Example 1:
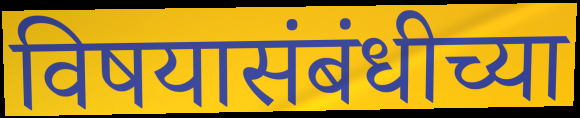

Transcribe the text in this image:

विषयासंबंधीच्या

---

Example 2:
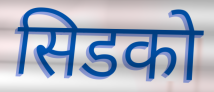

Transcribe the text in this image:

सिडको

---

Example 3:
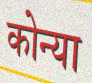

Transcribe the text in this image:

कोन्या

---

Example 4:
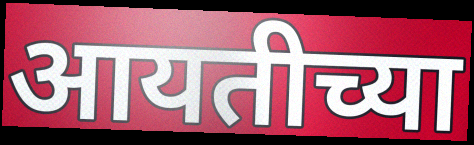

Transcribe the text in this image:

आयतीच्या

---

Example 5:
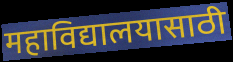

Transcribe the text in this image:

महाविद्यालयासाठी